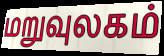
மறுவுலகம்